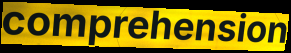
comprehension